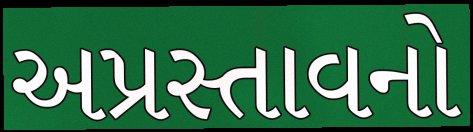
અપ્રસ્તાવનો